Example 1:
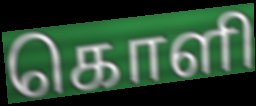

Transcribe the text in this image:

கொளி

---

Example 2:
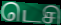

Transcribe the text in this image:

டெசி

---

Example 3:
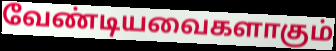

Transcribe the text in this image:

வேண்டியவைகளாகும்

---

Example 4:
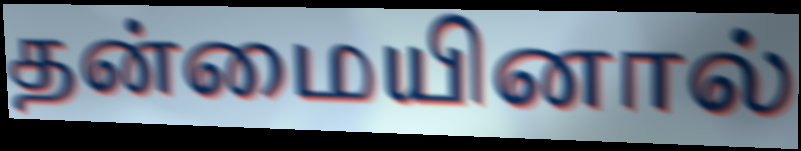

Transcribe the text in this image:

தன்மையினால்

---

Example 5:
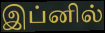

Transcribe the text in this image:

இப்னில்